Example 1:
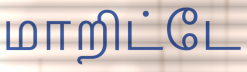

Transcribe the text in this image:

மாறிட்டே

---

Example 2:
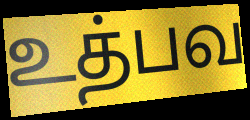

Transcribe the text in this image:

உத்பவ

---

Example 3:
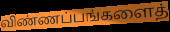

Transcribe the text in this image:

விண்ணப்பங்களைத்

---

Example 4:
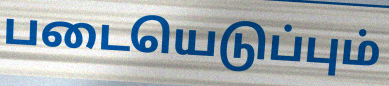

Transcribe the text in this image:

படையெடுப்பும்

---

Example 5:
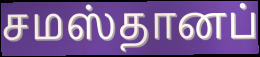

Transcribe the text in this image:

சமஸ்தானப்